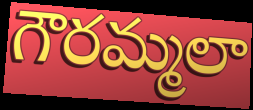
గౌరమ్మలా